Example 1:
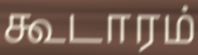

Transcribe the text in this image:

கூடாரம்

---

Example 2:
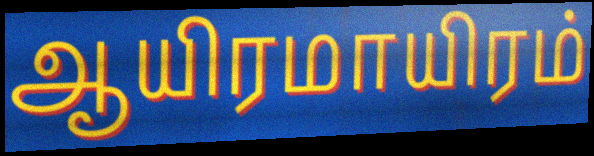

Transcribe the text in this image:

ஆயிரமாயிரம்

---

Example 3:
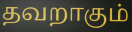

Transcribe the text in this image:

தவறாகும்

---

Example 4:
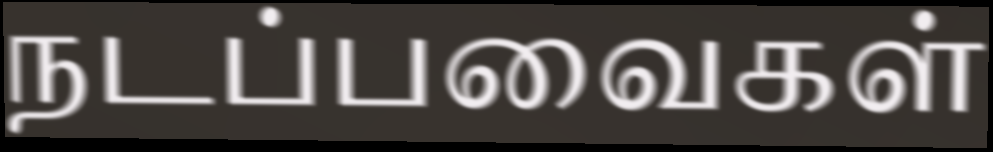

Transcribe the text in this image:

நடப்பவைகள்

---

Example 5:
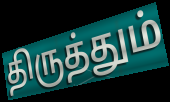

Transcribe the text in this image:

திருத்தும்